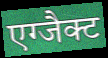
एग्जैक्ट